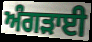
ਅੰਗੜਾਈ